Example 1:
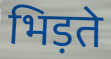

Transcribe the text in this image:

भिड़ते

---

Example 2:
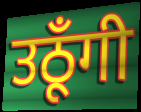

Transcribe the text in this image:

उठूँगी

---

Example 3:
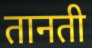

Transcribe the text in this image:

तानती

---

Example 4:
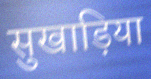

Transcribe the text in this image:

सुखाड़िया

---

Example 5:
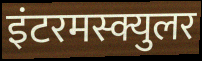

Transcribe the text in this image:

इंटरमस्क्युलर